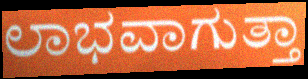
ಲಾಭವಾಗುತ್ತಾ